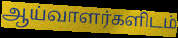
ஆய்வாளர்களிடம்